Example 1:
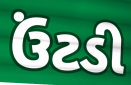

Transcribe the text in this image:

ઉંટડી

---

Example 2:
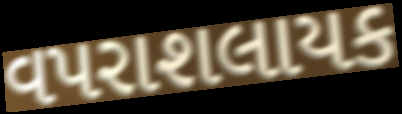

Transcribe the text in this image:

વપરાશલાયક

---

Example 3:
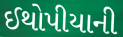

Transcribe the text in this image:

ઈથોપીયાની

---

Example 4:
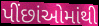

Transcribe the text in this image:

પીંછાંઓમાંથી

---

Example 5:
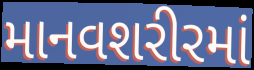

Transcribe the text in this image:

માનવશરીરમાં